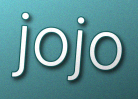
jojo